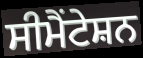
ਸੀਮੈਂਟੇਸ਼ਨ